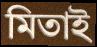
মিতাই